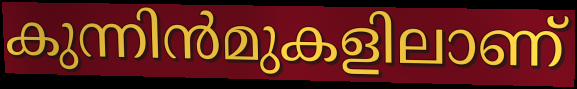
കുന്നിൻമുകളിലാണ്